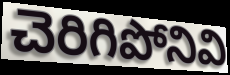
చెరిగిపోనివి